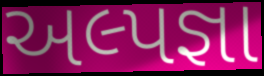
અલ્પજ્ઞા